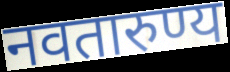
नवतारुण्य